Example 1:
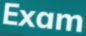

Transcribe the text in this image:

Exam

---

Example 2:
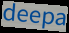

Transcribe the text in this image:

deepa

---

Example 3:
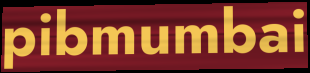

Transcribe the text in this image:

pibmumbai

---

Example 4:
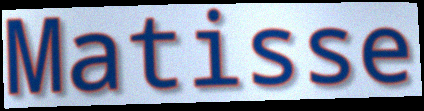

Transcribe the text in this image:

Matisse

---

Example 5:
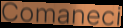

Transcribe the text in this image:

Comaneci